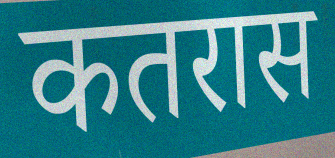
कतरास